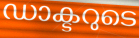
ഡാക്ടറുടെ